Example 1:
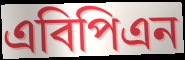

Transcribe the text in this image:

এবিপিএন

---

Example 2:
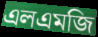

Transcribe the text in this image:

এলএমজি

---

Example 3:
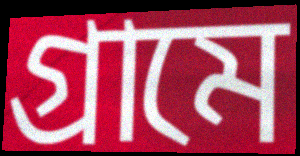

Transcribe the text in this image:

গ্রামে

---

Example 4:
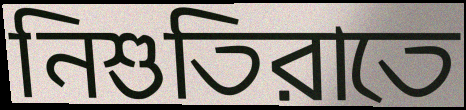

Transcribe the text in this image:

নিশুতিরাতে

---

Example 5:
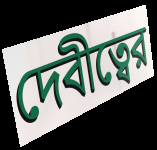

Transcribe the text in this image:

দেবীত্বের